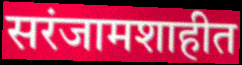
सरंजामशाहीत